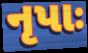
નૃપાઃ